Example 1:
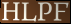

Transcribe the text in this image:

HLPF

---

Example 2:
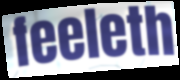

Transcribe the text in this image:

feeleth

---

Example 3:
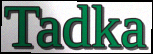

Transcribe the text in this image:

Tadka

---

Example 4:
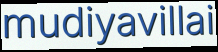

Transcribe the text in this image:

mudiyavillai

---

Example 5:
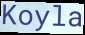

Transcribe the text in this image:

Koyla